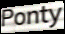
Ponty